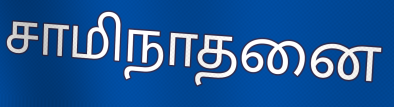
சாமிநாதனை